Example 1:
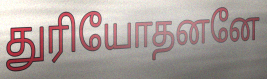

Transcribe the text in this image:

துரியோதனனே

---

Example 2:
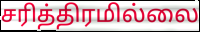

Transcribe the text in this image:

சரித்திரமில்லை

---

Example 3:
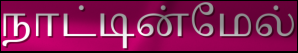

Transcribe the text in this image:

நாட்டின்மேல்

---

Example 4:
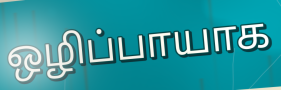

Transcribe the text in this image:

ஒழிப்பாயாக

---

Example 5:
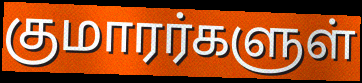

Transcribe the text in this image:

குமாரர்களுள்